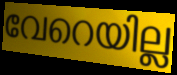
വേറെയില്ല